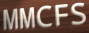
MMCFS